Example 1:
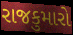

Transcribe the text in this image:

રાજકુમારો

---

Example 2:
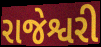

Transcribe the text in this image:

રાજેશ્વરી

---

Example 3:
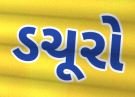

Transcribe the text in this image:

ડચૂરો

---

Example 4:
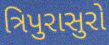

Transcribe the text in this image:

ત્રિપુરાસુરો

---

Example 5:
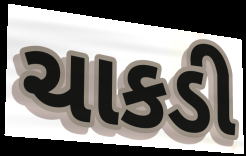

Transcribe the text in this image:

ચાકડી